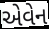
એવેન